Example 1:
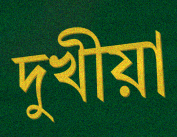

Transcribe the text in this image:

দুখীয়া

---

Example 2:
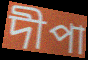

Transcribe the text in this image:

দীপা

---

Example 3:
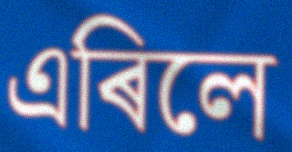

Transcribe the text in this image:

এৰিলে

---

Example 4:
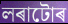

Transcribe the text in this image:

লৰাটোৰ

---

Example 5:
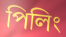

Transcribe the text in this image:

পিলিং